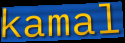
kamal